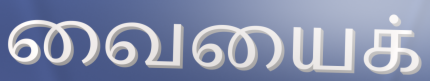
வையைக்